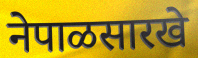
नेपाळसारखे